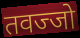
तवज्जो